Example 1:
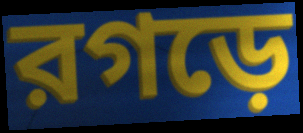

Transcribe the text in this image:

রগড়ে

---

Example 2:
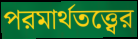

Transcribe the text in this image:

পরমার্থতত্ত্বের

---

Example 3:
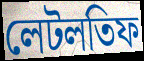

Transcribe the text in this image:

লেটলতিফ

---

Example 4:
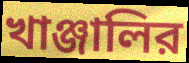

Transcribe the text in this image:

খাঞ্জালির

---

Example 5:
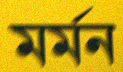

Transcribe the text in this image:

মর্মন